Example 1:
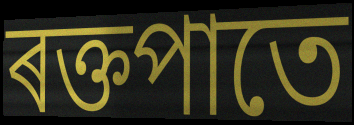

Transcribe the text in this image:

ৰক্তপাতে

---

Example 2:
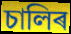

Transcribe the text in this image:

চালিৰ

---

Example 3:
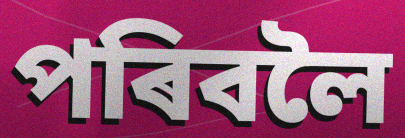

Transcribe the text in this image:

পৰিবলৈ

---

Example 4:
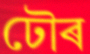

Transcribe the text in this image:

ঢৌৰ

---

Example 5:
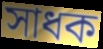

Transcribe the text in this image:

সাধক